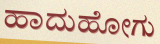
ಹಾದುಹೋಗು